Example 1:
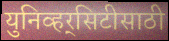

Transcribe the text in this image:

युनिव्हर्सिटीसाठी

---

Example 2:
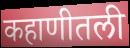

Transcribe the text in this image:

कहाणीतली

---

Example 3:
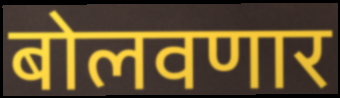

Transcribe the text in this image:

बोलवणार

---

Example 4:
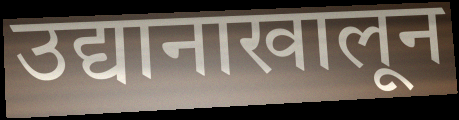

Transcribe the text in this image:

उद्यानाखालून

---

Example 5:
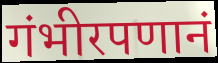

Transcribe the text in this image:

गंभीरपणानं